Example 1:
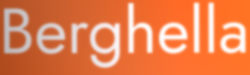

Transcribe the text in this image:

Berghella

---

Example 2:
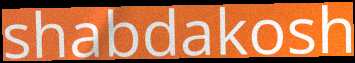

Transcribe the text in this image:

shabdakosh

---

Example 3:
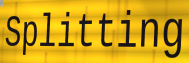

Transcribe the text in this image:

Splitting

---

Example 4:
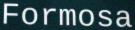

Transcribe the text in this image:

Formosa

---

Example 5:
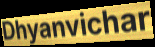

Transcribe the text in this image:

Dhyanvichar